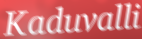
Kaduvalli